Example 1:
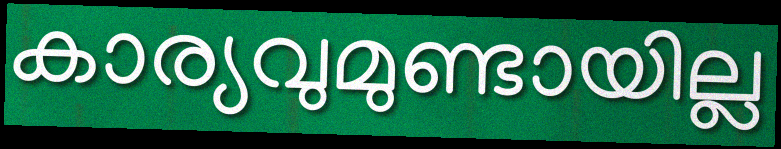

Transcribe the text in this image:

കാര്യവുമുണ്ടായില്ല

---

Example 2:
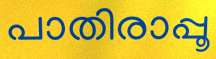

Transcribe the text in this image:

പാതിരാപ്പൂ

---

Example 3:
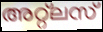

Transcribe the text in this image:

അറ്റ്ലസ്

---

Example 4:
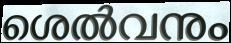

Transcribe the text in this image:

ശെൽവനും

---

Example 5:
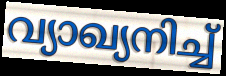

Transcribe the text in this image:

വ്യാഖ്യനിച്ച്